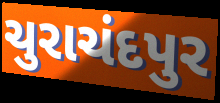
ચુરાચંદપુર